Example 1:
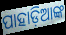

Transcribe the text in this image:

ପାହାଡ଼ିଆଙ୍କ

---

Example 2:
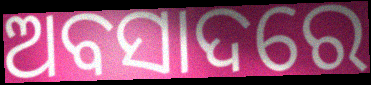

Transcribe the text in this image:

ଅବସାଦରେ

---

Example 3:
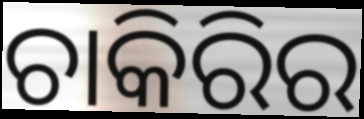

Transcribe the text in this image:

ଚାକିରିର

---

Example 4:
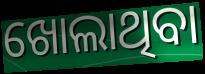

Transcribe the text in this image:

ଖୋଲାଥିବା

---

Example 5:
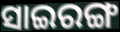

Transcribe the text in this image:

ସାଇରଙ୍ଗ